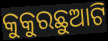
କୁକୁରଛୁଆଟି